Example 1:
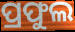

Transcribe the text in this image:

ପ୍ରଫୁଲ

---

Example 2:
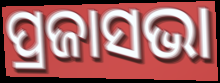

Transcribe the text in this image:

ପ୍ରଜାସଭା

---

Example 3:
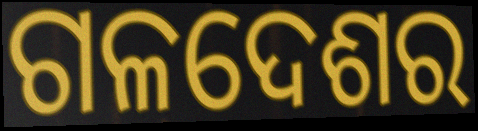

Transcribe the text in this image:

ଗଳଦେଶର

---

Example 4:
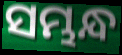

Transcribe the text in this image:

ସମ୍ଭନ୍ଧ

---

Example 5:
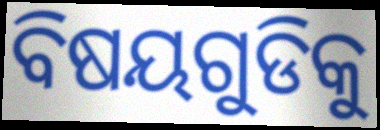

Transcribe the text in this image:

ବିଷୟଗୁଡିକୁ